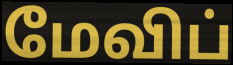
மேவிப்